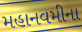
મહાનવમીના